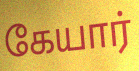
கேயார்